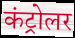
कंट्रोलर